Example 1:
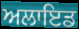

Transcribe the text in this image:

ਅਲਾਇਡ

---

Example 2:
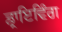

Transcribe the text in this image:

ਡ੍ਰਾਇਵਿੰਗ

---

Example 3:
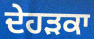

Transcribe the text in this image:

ਦੇਹੜਕਾ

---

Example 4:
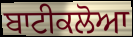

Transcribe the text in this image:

ਬਾਟੀਕਲੋਆ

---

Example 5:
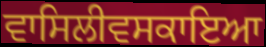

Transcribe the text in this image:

ਵਾਸਿਲੀਵਸਕਾਇਆ